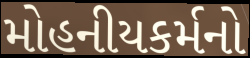
મોહનીયકર્મનો